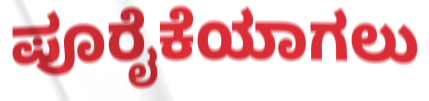
ಪೂರೈಕೆಯಾಗಲು